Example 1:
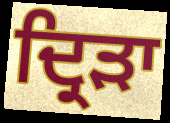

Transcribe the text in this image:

ਦ੍ਰਿੜਾ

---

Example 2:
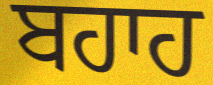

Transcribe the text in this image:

ਬਹਾਹ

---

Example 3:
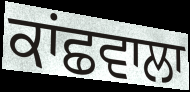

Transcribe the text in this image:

ਕਾਂਛਵਾਲਾ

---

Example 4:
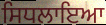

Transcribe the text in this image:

ਸਿਧਲਾਇਆ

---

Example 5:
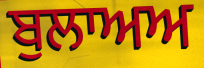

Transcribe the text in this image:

ਬੁਲਾਅਅ